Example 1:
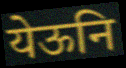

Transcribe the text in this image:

येऊनि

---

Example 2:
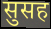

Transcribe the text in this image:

सुसह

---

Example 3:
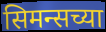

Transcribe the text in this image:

सिमन्सच्या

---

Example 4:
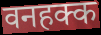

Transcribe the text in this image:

वनहक्क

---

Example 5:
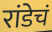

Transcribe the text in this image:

रांडेचं